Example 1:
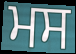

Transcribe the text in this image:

ਮਸ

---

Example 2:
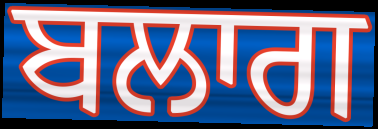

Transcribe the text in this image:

ਬਲਾਗ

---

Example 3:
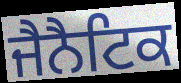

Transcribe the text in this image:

ਜੈਨੈਟਿਕ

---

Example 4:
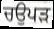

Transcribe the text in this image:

ਚਉਪੜ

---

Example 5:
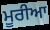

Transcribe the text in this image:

ਮੂਰੀਆ